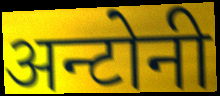
अन्टोनी